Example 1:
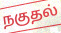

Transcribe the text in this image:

நகுதல்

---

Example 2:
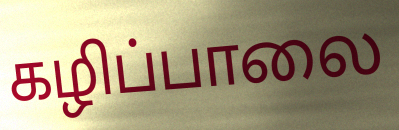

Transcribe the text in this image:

கழிப்பாலை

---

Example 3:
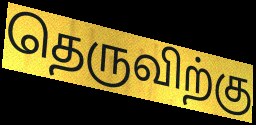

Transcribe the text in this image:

தெருவிற்கு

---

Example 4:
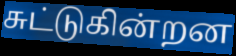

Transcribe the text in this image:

சுட்டுகின்றன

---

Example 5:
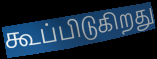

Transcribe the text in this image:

கூப்பிடுகிறது